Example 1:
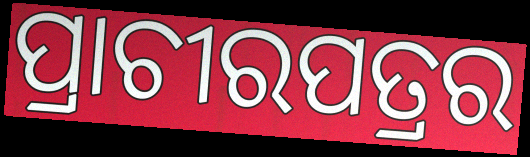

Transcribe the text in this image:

ପ୍ରାଚୀରପତ୍ରର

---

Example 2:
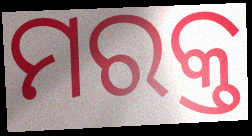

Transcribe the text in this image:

ମରକ୍ତ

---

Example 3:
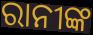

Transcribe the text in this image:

ରାନୀଙ୍କ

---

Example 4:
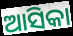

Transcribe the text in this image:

ଆସିକା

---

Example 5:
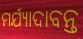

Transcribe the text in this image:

ମର୍ଯ୍ୟାଦାବନ୍ତ